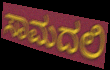
ಸಾಮದಲಿ